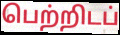
பெற்றிடப்